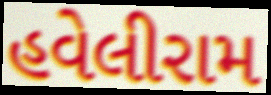
હવેલીરામ